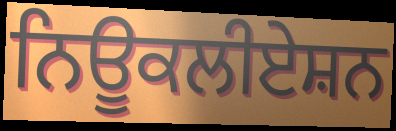
ਨਿਊਕਲੀਏਸ਼ਨ